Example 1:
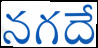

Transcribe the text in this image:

నగదే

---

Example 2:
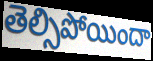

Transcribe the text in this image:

తెల్సిపోయిందా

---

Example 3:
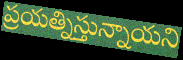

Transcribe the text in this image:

ప్రయత్నిస్తున్నాయని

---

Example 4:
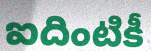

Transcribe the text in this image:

ఐదింటికీ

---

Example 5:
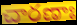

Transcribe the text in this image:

చారణాః